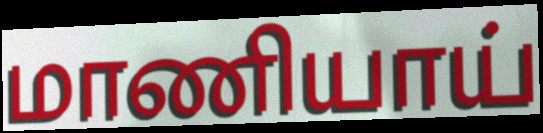
மாணியாய்